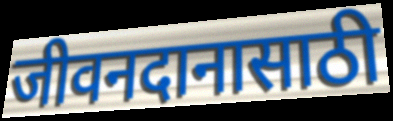
जीवनदानासाठी